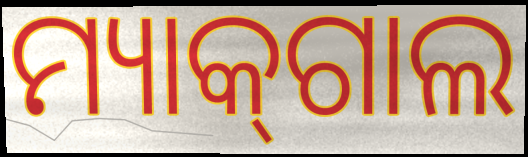
ମ୍ୟାକ୍‌ଗାଲ